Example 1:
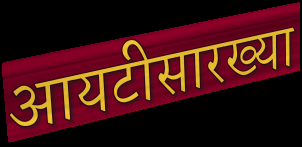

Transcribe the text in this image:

आयटीसारख्या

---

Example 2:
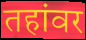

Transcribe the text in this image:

तहांवर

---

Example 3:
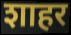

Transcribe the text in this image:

शाहर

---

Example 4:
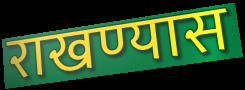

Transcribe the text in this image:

राखण्यास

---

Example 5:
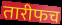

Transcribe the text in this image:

तारीफच